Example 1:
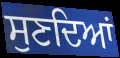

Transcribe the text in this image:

ਸੁਣਦਿਆਂ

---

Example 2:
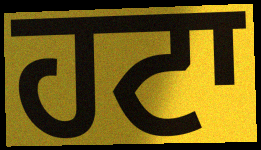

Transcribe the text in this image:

ਹਟਾ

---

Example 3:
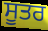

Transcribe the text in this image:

ਸੂਤਰ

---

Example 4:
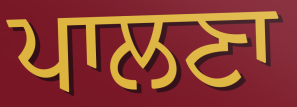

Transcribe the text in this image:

ਪਾਲਣਾ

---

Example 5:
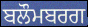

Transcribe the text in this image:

ਬਲੌਮਬਰਗ